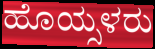
ಹೊಯ್ಸಳರು